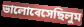
ভালোবেসেছিলুম